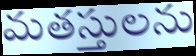
మతస్తులను